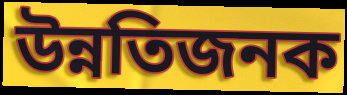
উন্নতিজনক